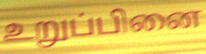
உறுப்பினை